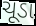
ચૂડા